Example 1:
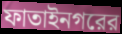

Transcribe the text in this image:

ফাতাইনগরের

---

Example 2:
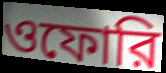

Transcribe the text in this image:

ওফোরি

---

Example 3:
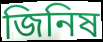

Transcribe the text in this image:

জিনিষ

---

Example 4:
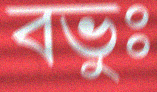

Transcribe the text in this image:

বভুঃ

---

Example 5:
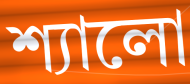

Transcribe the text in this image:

শ্যালো